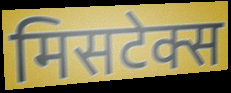
मिसटेक्स